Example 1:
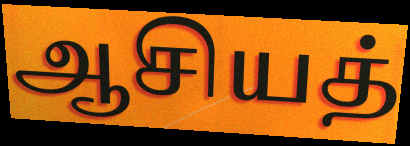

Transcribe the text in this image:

ஆசியத்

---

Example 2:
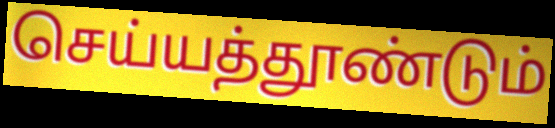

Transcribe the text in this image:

செய்யத்தூண்டும்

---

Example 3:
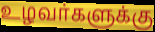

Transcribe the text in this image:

உழவர்களுக்கு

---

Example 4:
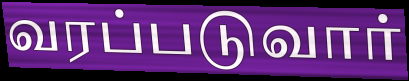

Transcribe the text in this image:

வரப்படுவார்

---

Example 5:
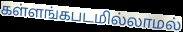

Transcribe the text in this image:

கள்ளங்கபடமில்லாமல்